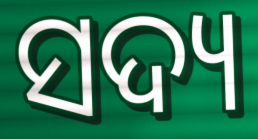
ସଦ୍ୟ